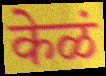
केळं